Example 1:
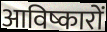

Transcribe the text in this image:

आविष्‍कारों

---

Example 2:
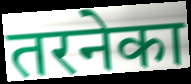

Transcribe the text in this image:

तरनेका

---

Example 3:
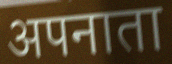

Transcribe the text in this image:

अपनाता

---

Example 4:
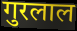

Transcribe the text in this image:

गुरलाल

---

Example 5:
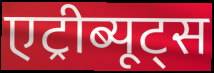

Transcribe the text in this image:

एट्रीब्यूट्स